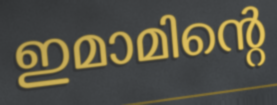
ഇമാമിന്റെ